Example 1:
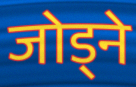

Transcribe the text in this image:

जोड्ने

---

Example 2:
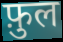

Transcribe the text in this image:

फ़ुल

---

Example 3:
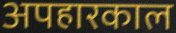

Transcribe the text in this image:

अपहारकाल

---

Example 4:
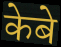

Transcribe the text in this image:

केबे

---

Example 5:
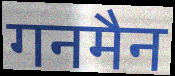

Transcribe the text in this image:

गनमैन